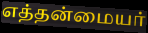
எத்தன்மையர்